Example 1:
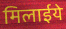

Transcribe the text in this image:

मिलाईये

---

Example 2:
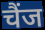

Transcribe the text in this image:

चैंज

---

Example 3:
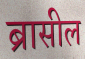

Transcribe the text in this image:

ब्रासील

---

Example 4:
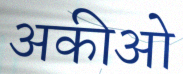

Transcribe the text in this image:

अकीओ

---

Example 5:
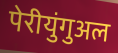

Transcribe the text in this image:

पेरीयुंगुअल